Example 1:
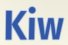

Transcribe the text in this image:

Kiw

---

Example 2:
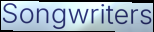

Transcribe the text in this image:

Songwriters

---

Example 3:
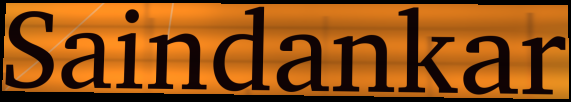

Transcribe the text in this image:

Saindankar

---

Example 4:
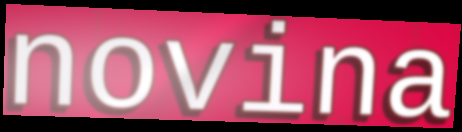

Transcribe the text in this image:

novina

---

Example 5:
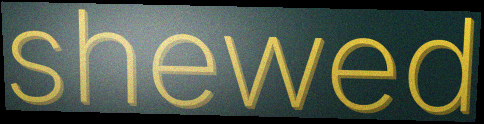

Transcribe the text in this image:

shewed